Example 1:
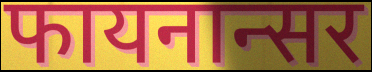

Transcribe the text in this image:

फायनान्सर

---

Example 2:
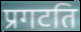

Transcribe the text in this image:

प्रगटति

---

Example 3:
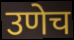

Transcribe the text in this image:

उणेच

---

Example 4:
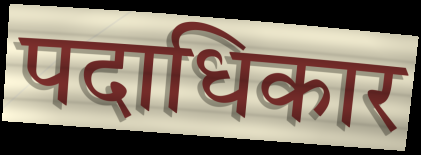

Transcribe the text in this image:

पदाधिकार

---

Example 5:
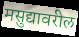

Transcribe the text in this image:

मसुद्यावरील